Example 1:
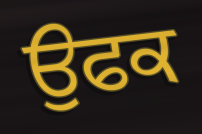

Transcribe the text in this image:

ਉਫਕ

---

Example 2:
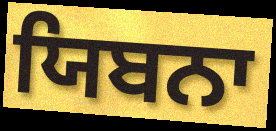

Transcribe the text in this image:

ਯਿਬਨਾ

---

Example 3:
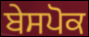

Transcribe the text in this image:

ਬੇਸਪੋਕ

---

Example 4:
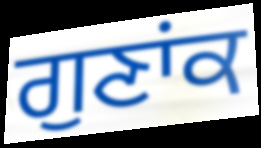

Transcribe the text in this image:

ਗੁਣਾਂਕ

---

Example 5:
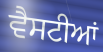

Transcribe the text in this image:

ਵੈਸਟੀਆਂ